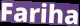
Fariha